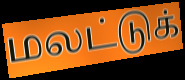
மலட்டுக்